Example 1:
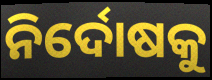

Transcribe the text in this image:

ନିର୍ଦୋଷକୁ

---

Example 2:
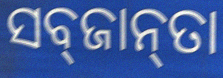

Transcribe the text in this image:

ସବ୍‌ଜାନ୍‌ତା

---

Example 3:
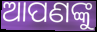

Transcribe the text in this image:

ଆପଣଙ୍କୁ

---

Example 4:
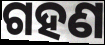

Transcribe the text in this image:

ଗହଣ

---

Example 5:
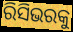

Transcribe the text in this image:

ରିସିଭରକୁ